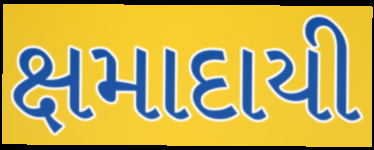
ક્ષમાદાયી